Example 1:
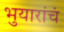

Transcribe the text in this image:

भुयारांचं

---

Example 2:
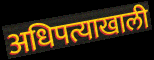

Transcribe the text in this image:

अधिपत्याखाली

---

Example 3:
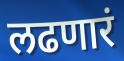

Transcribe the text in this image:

लढणारं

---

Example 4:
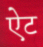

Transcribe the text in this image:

ऐट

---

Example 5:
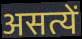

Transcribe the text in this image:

असत्यें